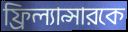
ফ্রিল্যান্সারকে